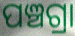
ପଞ୍ଚଗ୍ରା